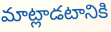
మాట్లాడటానికి